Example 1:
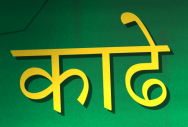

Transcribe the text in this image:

काढे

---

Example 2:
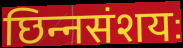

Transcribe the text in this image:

छिन्नसंशयः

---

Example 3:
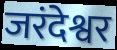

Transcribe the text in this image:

जरंदेश्वर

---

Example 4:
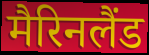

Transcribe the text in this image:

मैरिनलैंड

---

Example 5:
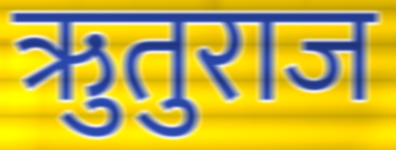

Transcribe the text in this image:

ऋुतुराज